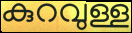
കുറവുള്ള